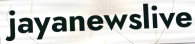
jayanewslive